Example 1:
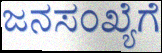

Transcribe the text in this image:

ಜನಸಂಖ್ಯೆಗೆ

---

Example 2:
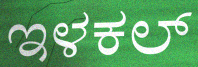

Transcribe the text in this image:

ಇಳಕಲ್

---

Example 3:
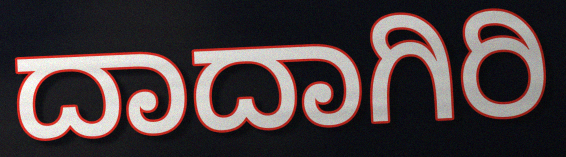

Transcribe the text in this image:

ದಾದಾಗಿರಿ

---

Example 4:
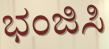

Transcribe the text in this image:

ಭಂಜಿಸಿ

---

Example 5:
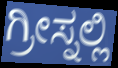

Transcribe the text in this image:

ಗ್ರೀಸ್ನಲ್ಲಿ